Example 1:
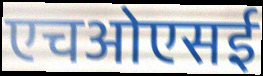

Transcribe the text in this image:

एचओएसई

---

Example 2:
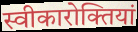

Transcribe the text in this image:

स्वीकारोक्तियां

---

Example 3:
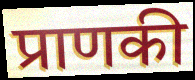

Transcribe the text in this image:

प्राणकी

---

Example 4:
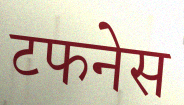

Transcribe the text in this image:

टफनेस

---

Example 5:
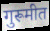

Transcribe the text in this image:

गुरूमीत